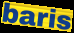
baris